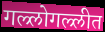
गल्लोगल्लीत